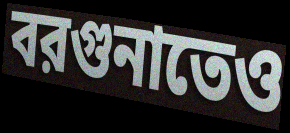
বরগুনাতেও